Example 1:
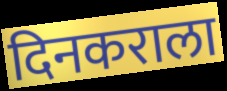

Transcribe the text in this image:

दिनकराला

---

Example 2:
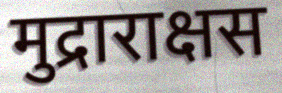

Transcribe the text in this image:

मुद्राराक्षस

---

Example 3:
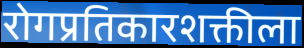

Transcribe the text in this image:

रोगप्रतिकारशक्तीला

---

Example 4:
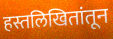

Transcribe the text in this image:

हस्तलिखितांतून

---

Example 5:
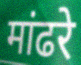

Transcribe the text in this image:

मांढरे